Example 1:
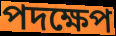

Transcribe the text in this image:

পদক্ষেপ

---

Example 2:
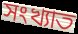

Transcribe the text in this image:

সংখ্যাত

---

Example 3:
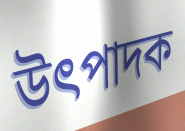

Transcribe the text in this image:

উৎপাদক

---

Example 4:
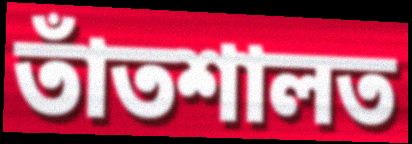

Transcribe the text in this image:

তাঁতশালত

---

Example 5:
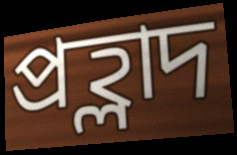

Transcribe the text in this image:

প্ৰহ্লাদ